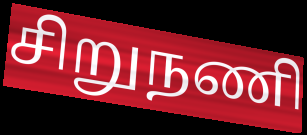
சிறுநணி